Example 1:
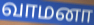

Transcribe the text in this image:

வாமனா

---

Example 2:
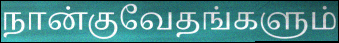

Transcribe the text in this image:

நான்குவேதங்களும்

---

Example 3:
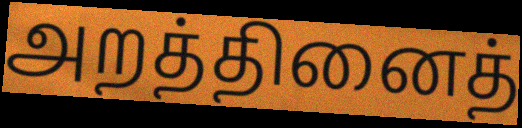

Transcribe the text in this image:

அறத்தினைத்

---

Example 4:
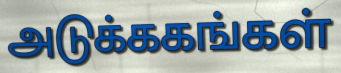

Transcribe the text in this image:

அடுக்ககங்கள்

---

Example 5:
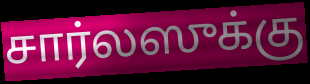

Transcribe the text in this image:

சார்லஸுக்கு